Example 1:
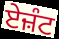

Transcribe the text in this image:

ਏਜ਼ੰਟ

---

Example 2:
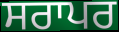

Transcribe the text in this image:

ਸਰਾਪਰ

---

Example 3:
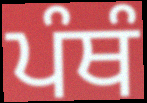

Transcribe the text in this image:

ਪੰਥੰ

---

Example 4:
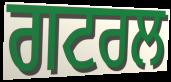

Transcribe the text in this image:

ਗਟਰਲ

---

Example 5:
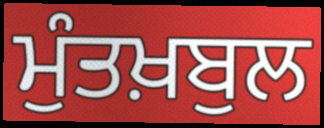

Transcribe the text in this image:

ਮੁੰਤਖ਼ਬੁਲ